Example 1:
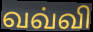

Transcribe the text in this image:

வவ்வி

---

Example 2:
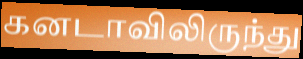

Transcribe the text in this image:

கனடாவிலிருந்து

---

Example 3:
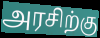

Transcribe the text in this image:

அரசிற்கு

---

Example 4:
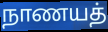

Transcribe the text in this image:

நாணயத்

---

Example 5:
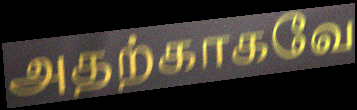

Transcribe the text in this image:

அதற்காகவே